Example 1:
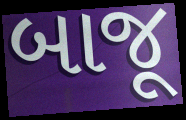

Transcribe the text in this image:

બાજૂ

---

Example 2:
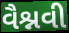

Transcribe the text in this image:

વૈશ્નવી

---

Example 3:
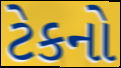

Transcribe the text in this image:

ટેકનો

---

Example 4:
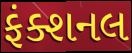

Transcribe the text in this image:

ફંક્શનલ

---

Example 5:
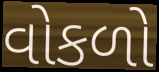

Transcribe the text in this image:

વોકળો